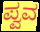
ಪ್ವವ